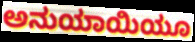
ಅನುಯಾಯಿಯೂ